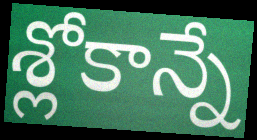
శ్లోకాన్నే